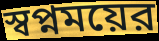
স্বপ্নময়ের